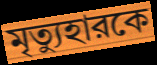
মৃত্যুহারকে